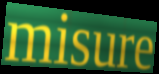
misure